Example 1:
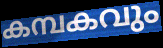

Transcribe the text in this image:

കമ്പകവും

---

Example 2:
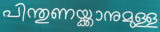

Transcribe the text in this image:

പിന്തുണയ്ക്കാനുമുള്ള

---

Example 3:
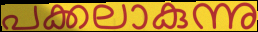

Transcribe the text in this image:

പക്കലാകുന്നു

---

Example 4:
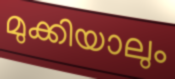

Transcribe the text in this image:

മുക്കിയാലും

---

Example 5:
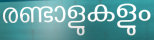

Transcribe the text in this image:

രണ്ടാളുകളും